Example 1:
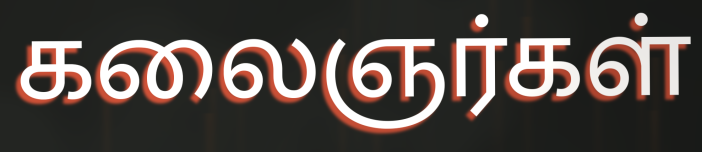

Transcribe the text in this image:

கலைஞர்கள்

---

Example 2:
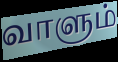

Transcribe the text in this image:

வாளும்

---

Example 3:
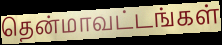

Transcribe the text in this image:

தென்மாவட்டங்கள்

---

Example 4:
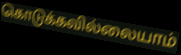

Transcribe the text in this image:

கொடுக்கவில்லையாம்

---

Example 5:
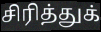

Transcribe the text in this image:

சிரித்துக்